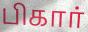
பிகார்